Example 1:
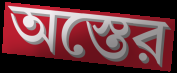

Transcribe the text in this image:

অস্তের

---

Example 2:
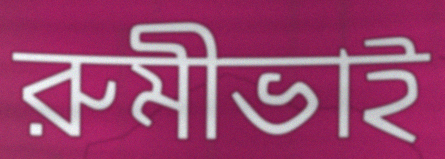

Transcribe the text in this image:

রুমীভাই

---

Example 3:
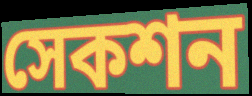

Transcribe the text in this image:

সেকশন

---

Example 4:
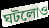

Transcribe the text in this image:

ঘটলোও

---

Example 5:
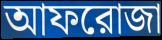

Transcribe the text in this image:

আফরোজা